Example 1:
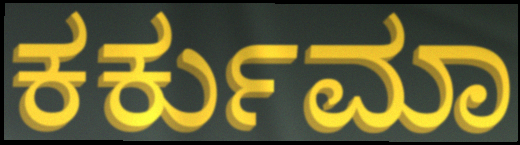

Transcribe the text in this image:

ಕರ್ಕುಮಾ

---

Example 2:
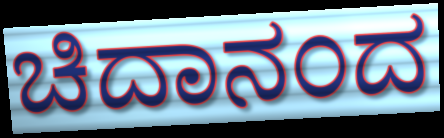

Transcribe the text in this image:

ಚಿದಾನಂದ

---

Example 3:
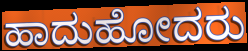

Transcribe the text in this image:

ಹಾದುಹೋದರು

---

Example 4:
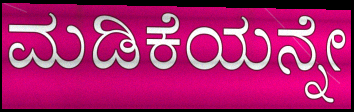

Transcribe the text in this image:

ಮಡಿಕೆಯನ್ನೇ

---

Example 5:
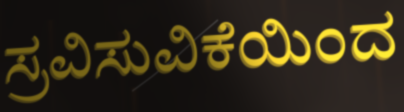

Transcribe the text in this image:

ಸ್ರವಿಸುವಿಕೆಯಿಂದ